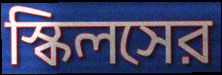
স্কিলসের